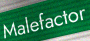
Malefactor